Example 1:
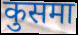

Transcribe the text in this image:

कुसमा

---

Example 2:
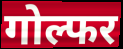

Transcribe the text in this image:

गोल्फर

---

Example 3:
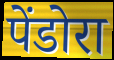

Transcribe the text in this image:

पेंडोरा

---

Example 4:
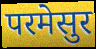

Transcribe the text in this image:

परमेसुर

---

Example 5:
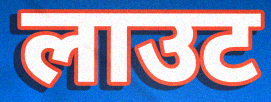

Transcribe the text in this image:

लाउट